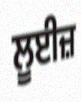
ਲੂਈਜ਼